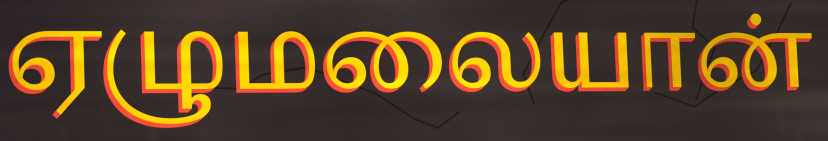
ஏழுமலையான்